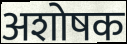
अशोषक